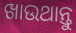
ଖାଉଥାନ୍ତୁ